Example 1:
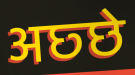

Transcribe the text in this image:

अछ्छे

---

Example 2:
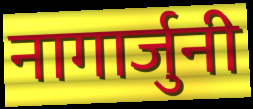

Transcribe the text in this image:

नागार्जुनी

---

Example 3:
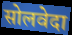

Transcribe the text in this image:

सोलवेदा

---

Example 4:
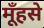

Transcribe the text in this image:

मूँहसे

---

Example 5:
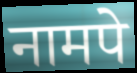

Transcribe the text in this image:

नामपे